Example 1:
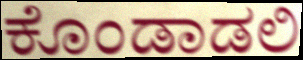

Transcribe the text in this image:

ಕೊಂಡಾಡಲಿ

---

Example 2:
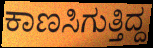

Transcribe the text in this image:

ಕಾಣಸಿಗುತ್ತಿದ್ದ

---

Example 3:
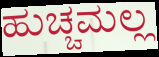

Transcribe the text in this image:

ಹುಚ್ಚಮಲ್ಲ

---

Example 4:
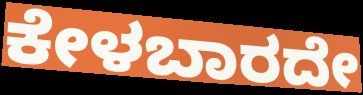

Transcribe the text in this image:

ಕೇಳಬಾರದೇ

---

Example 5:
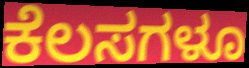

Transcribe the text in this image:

ಕೆಲಸಗಳೂ